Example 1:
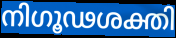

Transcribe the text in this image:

നിഗൂഢശക്തി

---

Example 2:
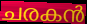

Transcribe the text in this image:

ചരകൻ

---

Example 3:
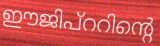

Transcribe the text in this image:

ഈജിപ്ററിന്റെ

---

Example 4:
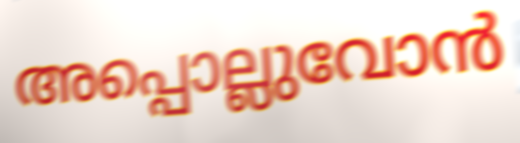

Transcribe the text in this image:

അപ്പൊല്ലുവോൻ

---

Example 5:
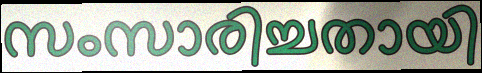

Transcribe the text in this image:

സംസാരിച്ചതായി